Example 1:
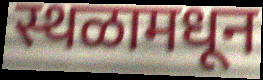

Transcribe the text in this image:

स्थळामधून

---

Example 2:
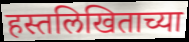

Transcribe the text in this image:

हस्तलिखिताच्या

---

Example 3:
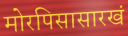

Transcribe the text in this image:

मोरपिसासारखं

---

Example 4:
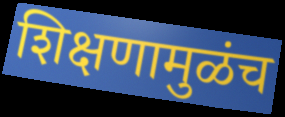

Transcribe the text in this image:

शिक्षणामुळंच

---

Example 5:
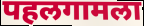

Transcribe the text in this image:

पहलगामला